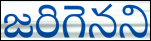
జరిగెనని